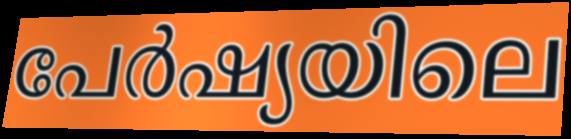
പേർഷ്യയിലെ